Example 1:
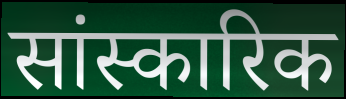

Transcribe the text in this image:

सांस्कारिक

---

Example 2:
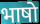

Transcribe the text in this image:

भाषो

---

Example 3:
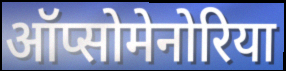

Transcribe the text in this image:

ऑप्सोमेनोरिया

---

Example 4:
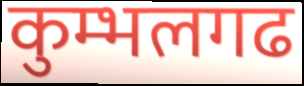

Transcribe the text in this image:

कुम्भलगढ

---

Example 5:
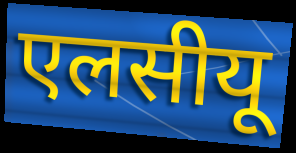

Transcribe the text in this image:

एलसीयू